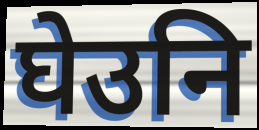
घेउनि